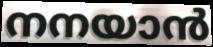
നനയാൻ